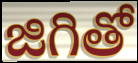
జిగితో